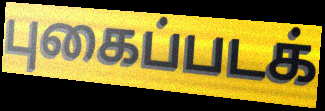
புகைப்படக்